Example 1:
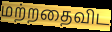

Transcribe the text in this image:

மற்றதைவிட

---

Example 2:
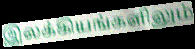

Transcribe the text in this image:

இலக்கியங்களிலும்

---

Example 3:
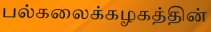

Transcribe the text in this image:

பல்கலைக்கழகத்தின்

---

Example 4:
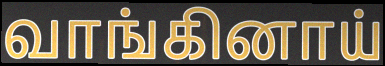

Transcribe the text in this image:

வாங்கினாய்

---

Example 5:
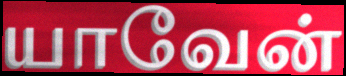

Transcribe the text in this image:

யாவேன்